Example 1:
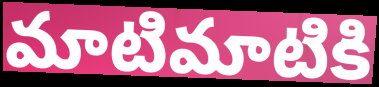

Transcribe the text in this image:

మాటిమాటికి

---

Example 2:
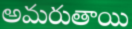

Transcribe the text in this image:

అమరుతాయి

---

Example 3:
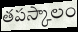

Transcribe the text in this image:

తపస్కాలం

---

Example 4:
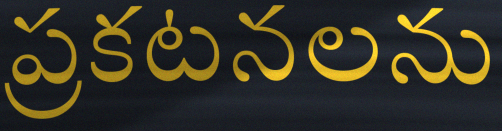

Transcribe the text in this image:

ప్రకటనలను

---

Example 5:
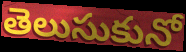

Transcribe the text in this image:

తెలుసుకునో